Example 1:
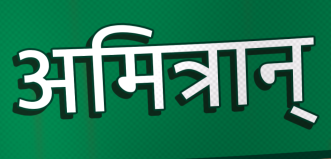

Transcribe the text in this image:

अमित्रान्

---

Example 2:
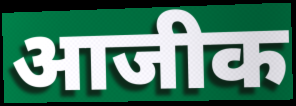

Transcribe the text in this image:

आजीक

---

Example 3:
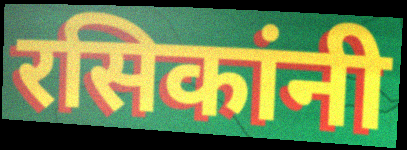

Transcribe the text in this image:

रसिकांनी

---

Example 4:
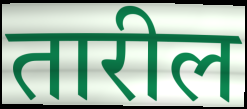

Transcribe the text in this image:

तारील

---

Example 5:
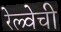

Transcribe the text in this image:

रेल्वेची